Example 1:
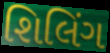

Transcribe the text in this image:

શિલિંગ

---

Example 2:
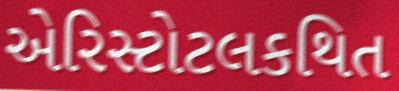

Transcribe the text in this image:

એરિસ્ટોટલકથિત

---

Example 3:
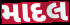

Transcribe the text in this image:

માદલ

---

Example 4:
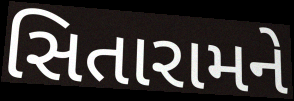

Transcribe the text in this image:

સિતારામને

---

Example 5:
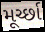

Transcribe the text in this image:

મૂર્ચ્છા